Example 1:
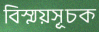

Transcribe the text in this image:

বিস্ময়সূচক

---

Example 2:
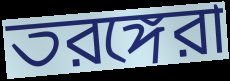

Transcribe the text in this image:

তরঙ্গেরা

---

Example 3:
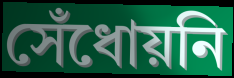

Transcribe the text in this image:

সেঁধোয়নি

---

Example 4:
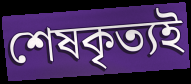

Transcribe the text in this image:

শেষকৃত্যই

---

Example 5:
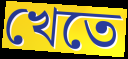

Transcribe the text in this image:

খেতে